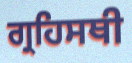
ਗ੍ਰਹਿਸਥੀ